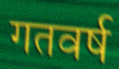
गतवर्ष